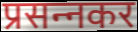
प्रसन्नकर